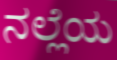
ನಲ್ಲೆಯ